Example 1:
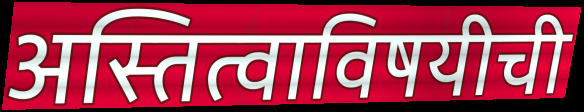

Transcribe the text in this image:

अस्तित्वाविषयीची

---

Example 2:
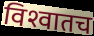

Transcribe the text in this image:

विश्वातच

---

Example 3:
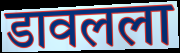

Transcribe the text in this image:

डावलला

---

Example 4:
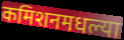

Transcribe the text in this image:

कमिशनमधल्या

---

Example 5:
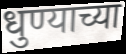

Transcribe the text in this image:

धुण्याच्या